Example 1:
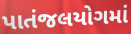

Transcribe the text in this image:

પાતંજલયોગમાં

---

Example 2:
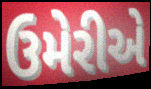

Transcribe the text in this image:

ઉમેરીએ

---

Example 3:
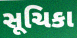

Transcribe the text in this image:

સૂચિકા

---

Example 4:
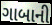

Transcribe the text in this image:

ગાબાની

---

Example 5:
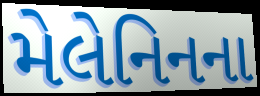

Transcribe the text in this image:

મેલેનિનના